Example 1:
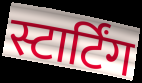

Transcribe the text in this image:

स्टार्टिंग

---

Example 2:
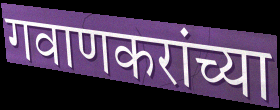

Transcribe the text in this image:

गवाणकरांच्या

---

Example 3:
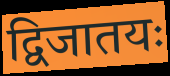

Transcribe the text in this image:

द्विजातयः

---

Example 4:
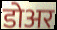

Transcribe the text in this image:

डोअर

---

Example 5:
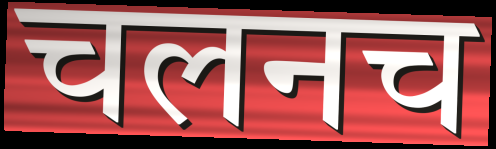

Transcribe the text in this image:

चलनच